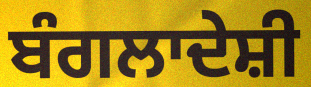
ਬੰਗਲਾਦੇਸ਼ੀ